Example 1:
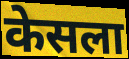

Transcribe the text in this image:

केसला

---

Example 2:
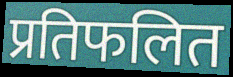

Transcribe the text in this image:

प्रतिफलित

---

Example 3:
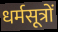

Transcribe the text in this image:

धर्मसूत्रों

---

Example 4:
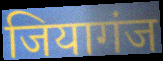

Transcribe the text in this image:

जियागंज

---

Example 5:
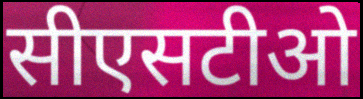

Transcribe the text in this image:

सीएसटीओ